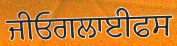
ਜੀਓਗਲਾਈਫਸ